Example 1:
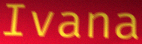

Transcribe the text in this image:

Ivana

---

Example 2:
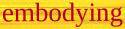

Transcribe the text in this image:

embodying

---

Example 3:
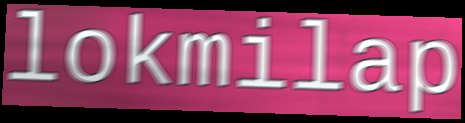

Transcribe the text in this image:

lokmilap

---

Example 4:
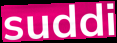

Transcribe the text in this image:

suddi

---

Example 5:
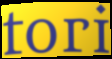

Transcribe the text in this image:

tori